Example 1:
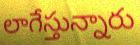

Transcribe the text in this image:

లాగేస్తున్నారు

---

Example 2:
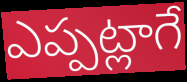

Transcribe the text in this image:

ఎప్పట్లాగే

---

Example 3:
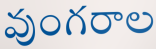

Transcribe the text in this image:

వుంగరాల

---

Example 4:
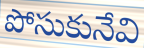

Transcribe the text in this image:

పోసుకునేవి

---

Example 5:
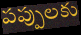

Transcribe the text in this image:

పప్పులకు